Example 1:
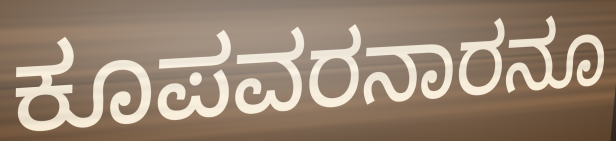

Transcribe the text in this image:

ಕೂಪವರನಾರನೂ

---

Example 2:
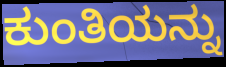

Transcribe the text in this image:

ಕುಂತಿಯನ್ನು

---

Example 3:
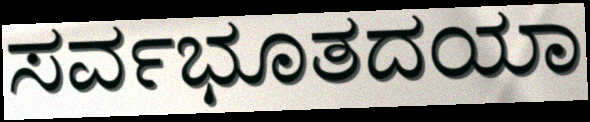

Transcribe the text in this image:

ಸರ್ವಭೂತದಯಾ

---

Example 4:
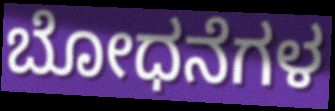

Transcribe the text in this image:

ಬೋಧನೆಗಳ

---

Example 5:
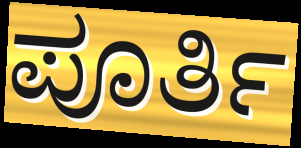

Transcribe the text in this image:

ಪೂರ್ತಿ